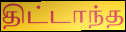
திட்டாந்த